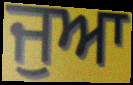
ਜੁਆ